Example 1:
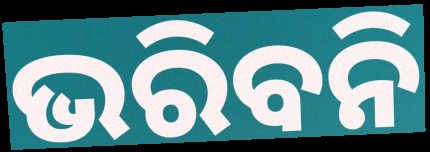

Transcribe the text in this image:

ଭରିବନି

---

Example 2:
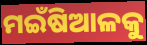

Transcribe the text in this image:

ମଇଁଷିଆଳକୁ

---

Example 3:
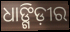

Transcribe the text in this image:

ଧାଙ୍ଗିଡ଼ୀର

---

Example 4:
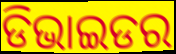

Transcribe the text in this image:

ଡିଭାଇଡର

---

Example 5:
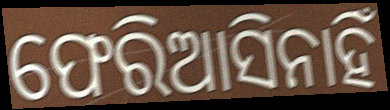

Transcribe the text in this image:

ଫେରିଆସିନାହିଁ